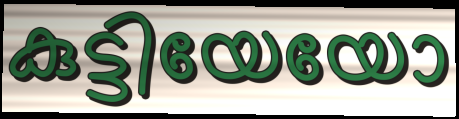
കുട്ടിയേയോ